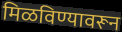
मिळविण्यावरून